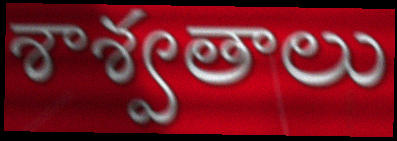
శాశ్వతాలు